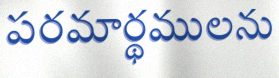
పరమార్థములను